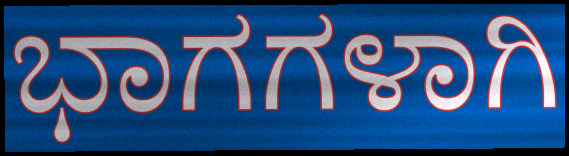
ಭಾಗಗಳಾಗಿ